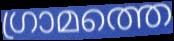
ഗ്രാമത്തെ